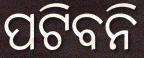
ପଟିବନି